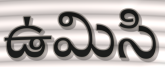
ఉమిసి